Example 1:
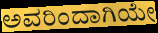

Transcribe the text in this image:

ಅವರಿಂದಾಗಿಯೇ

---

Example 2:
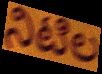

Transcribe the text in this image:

ನಿಟಿಲ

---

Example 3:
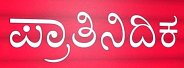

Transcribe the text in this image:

ಪ್ರಾತಿನಿದಿಕ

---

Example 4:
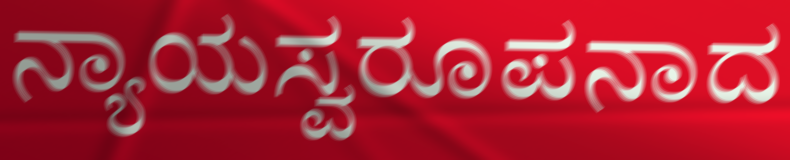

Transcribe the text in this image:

ನ್ಯಾಯಸ್ವರೂಪನಾದ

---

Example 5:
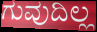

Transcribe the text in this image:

ಗುವುದಿಲ್ಲ